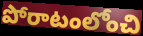
పోరాటంలోంచి